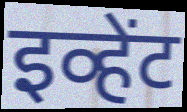
इव्हेंट